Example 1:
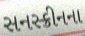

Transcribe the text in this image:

સનસ્ક્રીનના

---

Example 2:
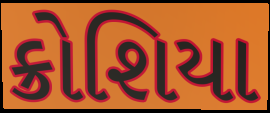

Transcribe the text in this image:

ક્રોશિયા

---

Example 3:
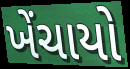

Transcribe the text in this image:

ખેંચાયો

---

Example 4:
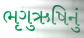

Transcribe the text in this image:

ભૃગુઋષિનું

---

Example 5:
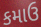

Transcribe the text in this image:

કમાઉ